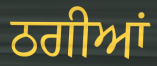
ਠਗੀਆਂ